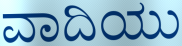
ವಾದಿಯು